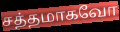
சத்தமாகவோ